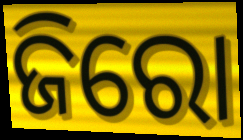
ଜିରୋ